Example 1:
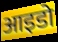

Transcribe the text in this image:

आइडो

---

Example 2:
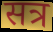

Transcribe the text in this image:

सत्र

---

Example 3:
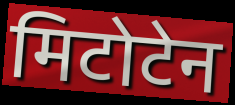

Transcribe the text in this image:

मिटोटेन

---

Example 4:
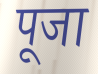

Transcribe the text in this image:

पूजा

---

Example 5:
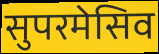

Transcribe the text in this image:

सुपरमेसिव